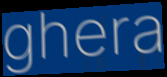
ghera